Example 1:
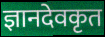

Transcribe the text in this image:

ज्ञानदेवकृत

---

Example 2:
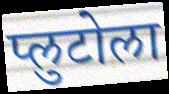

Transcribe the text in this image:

प्लुटोला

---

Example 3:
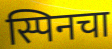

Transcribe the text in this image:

स्पिनचा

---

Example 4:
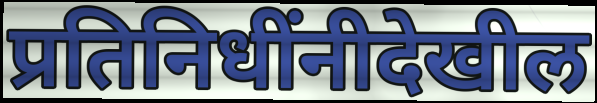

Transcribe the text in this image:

प्रतिनिधींनीदेखील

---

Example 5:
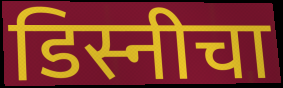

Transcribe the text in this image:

डिस्नीचा